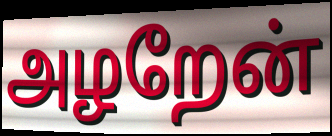
அழறேன்